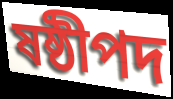
ষষ্ঠীপদ